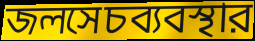
জলসেচব্যবস্থার